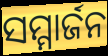
ସମ୍ମାର୍ଜନ